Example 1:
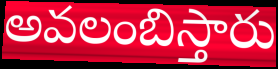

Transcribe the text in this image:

అవలంబిస్తారు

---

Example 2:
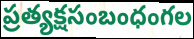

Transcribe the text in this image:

ప్రత్యక్షసంబంధంగల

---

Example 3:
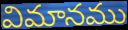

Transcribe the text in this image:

విమానము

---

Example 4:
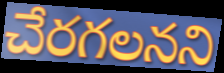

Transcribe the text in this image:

చేరగలనని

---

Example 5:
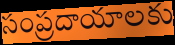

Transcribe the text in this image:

సంప్రదాయాలకు